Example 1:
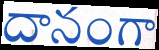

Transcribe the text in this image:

దానంగా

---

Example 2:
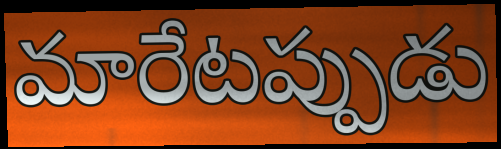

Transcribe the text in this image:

మారేటప్పుడు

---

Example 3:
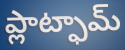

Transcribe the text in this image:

ప్లాట్ఫామ్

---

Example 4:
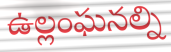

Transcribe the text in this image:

ఉల్లంఘనల్ని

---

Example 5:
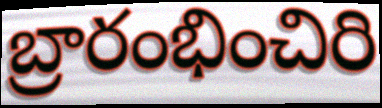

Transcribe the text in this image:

బ్రారంభించిరి